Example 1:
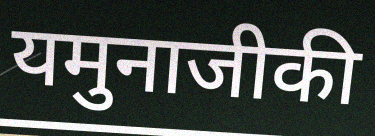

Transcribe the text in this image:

यमुनाजीकी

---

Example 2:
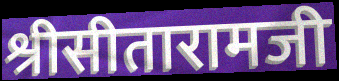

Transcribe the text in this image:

श्रीसीतारामजी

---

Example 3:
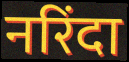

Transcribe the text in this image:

नरिंदा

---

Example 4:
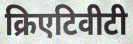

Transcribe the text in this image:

क्रिएटिवीटी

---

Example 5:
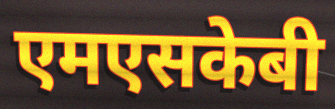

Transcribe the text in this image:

एमएसकेबी